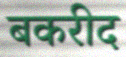
बकरीद